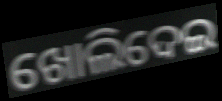
ଖୋଲିଦେଇ